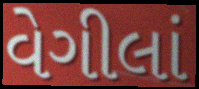
વેગીલાં